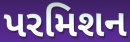
પરમિશન